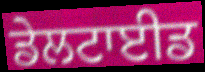
ਡੇਲਟਾਈਡ